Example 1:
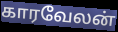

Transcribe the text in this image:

காரவேலன்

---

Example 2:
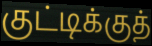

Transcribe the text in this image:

குட்டிக்குத்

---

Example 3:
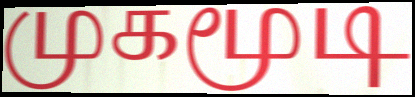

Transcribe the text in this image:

முகமூடி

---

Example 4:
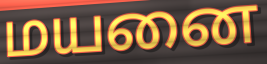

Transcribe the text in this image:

மயனை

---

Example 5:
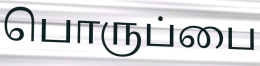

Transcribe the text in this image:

பொருப்பை